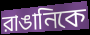
রাঙানিকে